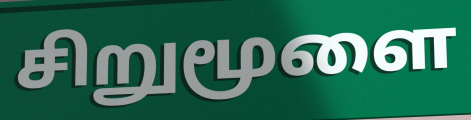
சிறுமூளை